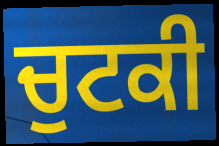
ਚੁਟਕੀ